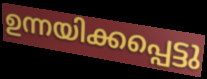
ഉന്നയിക്കപ്പെട്ടു